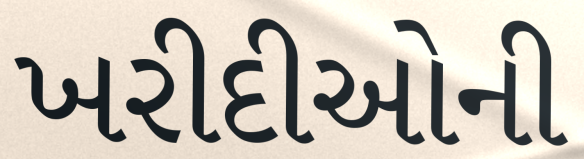
ખરીદીઓની